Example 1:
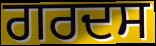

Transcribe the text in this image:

ਗਰਦਸ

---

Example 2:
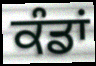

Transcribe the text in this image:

ਕੰਡਾਂ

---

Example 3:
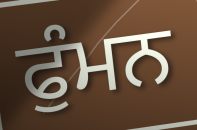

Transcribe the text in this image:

ਫੁੰਮਨ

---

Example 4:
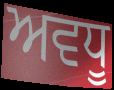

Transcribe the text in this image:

ਅਵਧੂ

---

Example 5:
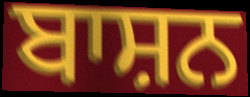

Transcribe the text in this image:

ਬਾਸ਼ਨ